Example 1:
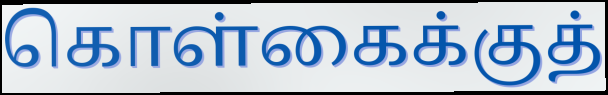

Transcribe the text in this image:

கொள்கைக்குத்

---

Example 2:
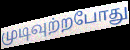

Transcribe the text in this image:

முடிவுற்றபோது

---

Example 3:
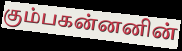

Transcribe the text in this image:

கும்பகன்னனின்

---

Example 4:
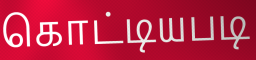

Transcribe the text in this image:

கொட்டியபடி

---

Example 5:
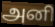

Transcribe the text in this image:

அனி